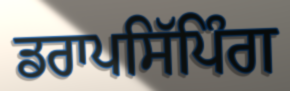
ਡਰਾਪਸਿੱਪਿੰਗ